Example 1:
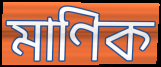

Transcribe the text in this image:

মাণিক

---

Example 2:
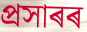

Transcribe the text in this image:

প্ৰসাৰৰ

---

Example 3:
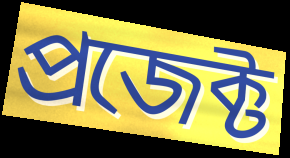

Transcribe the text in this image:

প্ৰজেক্ট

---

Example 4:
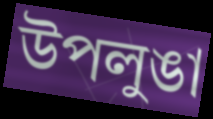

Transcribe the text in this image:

উপলুঙা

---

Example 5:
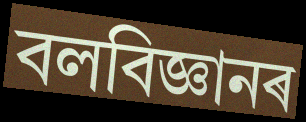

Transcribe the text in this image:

বলবিজ্ঞানৰ